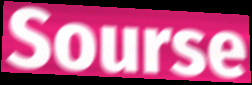
Sourse